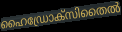
ഹൈഡ്രോക്സിതൈൽ